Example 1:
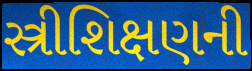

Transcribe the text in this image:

સ્ત્રીશિક્ષણની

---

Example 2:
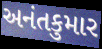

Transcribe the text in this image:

અનંતકુમાર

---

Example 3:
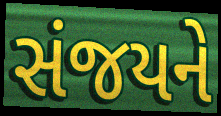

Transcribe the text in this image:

સંજયને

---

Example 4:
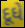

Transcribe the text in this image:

દૂધે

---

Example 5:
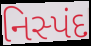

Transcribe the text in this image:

નિસ્પંદ